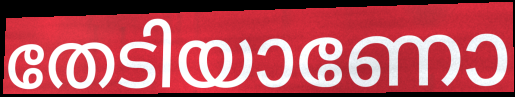
തേടിയാണോ